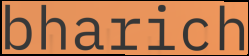
bharich